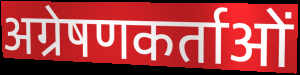
अग्रेषणकर्ताओं